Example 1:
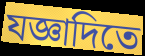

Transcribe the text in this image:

যজ্ঞাদিতে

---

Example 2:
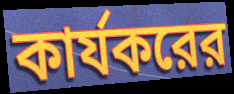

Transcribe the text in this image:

কার্যকরের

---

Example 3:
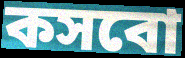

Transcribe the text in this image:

কসবো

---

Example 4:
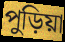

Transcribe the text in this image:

পুড়িয়া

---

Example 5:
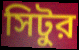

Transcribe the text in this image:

সিটুর